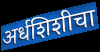
अर्धशिशीचा